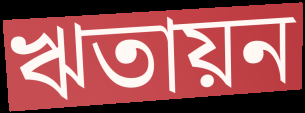
ঋতায়ন